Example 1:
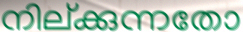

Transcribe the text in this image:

നില്ക്കുന്നതോ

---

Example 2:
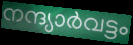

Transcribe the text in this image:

നന്ദ്യാർവട്ടം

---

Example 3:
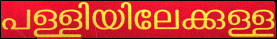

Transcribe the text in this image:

പള്ളിയിലേക്കുള്ള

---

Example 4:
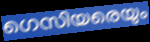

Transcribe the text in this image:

ഗെസിയരെയും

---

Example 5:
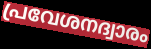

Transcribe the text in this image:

പ്രവേശനദ്വാരം